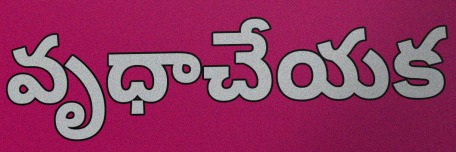
వృధాచేయక